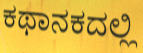
ಕಥಾನಕದಲ್ಲಿ